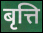
बृत्ति